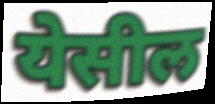
येसील